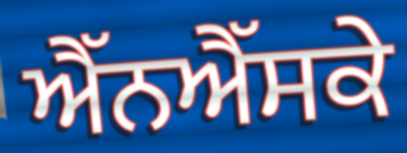
ਐੱਨਐੱਸਕੇ